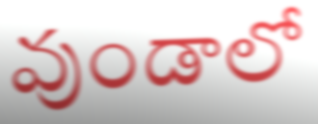
వుండాలో